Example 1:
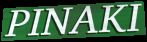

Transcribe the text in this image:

PINAKI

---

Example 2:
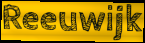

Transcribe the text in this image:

Reeuwijk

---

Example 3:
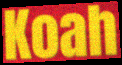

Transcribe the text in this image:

Koah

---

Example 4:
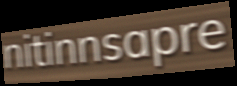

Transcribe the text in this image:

nitinnsapre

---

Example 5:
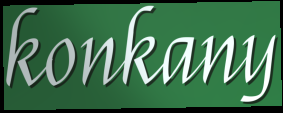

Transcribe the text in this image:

konkany